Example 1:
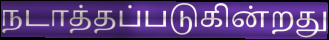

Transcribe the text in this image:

நடாத்தப்படுகின்றது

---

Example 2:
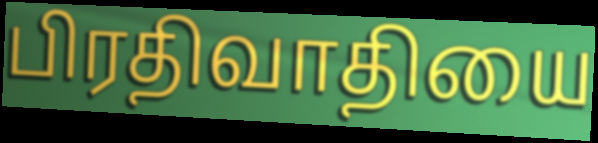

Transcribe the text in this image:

பிரதிவாதியை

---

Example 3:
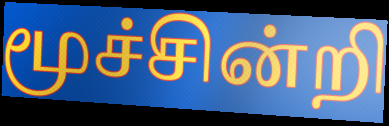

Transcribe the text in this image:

மூச்சின்றி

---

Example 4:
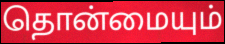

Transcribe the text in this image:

தொன்மையும்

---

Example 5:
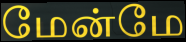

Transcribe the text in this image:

மேன்மே